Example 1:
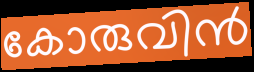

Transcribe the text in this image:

കോരുവിൻ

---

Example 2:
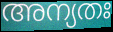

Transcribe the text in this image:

അന്യതഃ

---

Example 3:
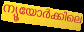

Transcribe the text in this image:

ന്യൂയോർക്കിലെ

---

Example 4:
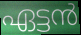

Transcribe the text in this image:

ഏട്ടൻ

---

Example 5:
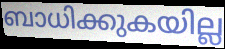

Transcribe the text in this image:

ബാധിക്കുകയില്ല